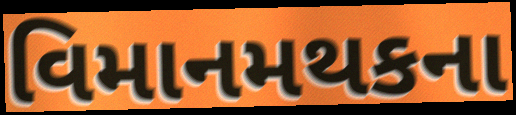
વિમાનમથકના